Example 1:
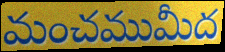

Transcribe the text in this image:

మంచముమీద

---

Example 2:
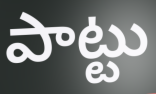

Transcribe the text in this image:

పాట్టు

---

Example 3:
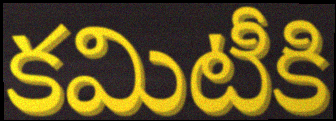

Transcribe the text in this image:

కమిటీకి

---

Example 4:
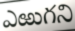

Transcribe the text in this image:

ఎఱుగని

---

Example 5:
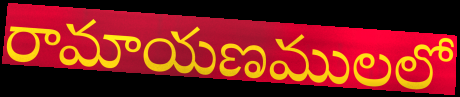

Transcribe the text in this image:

రామాయణములలో